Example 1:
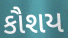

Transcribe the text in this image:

કૌશય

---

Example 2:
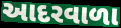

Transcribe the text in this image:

આદરવાળા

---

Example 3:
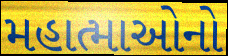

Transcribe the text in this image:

મહાત્માઓનો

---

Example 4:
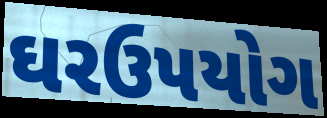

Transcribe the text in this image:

ઘરઉપયોગ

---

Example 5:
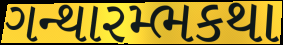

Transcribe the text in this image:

ગન્થારમ્ભકથા